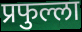
प्रफुल्ला